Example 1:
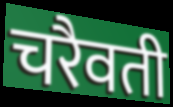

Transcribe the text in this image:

चरैवती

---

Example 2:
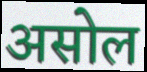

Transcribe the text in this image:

असोल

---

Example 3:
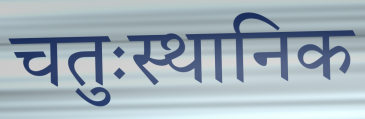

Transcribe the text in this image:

चतुःस्थानिक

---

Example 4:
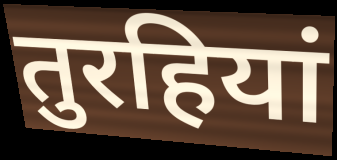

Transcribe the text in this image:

तुरहियां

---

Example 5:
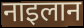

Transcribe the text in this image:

नाइलान